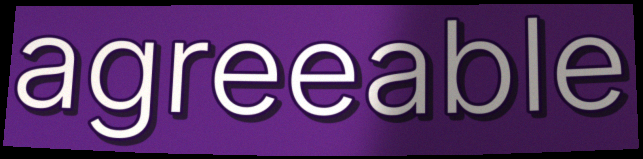
agreeable